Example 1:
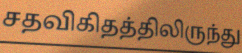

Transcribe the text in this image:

சதவிகிதத்திலிருந்து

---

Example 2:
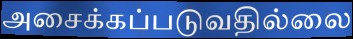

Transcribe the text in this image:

அசைக்கப்படுவதில்லை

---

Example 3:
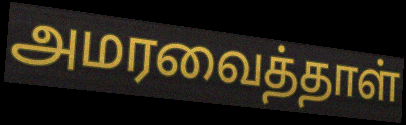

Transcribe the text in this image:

அமரவைத்தாள்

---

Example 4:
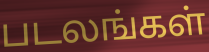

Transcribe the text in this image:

படலங்கள்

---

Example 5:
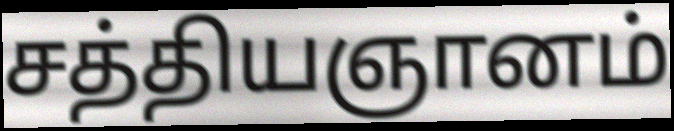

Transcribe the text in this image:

சத்தியஞானம்